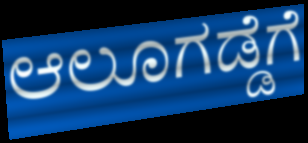
ಆಲೂಗಡ್ಡೆಗೆ